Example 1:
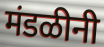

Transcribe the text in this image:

मंडळीनी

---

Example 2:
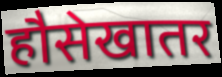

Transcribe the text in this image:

हौसेखातर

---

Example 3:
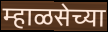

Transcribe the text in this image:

म्हाळसेच्या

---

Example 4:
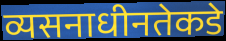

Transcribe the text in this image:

व्यसनाधीनतेकडे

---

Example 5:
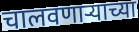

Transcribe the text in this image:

चालवणार्‍याच्या